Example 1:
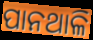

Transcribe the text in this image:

ପାନଥାଳି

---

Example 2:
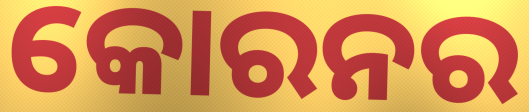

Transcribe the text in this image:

କୋରନର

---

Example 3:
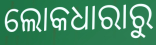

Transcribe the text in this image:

ଲୋକଧାରାରୁ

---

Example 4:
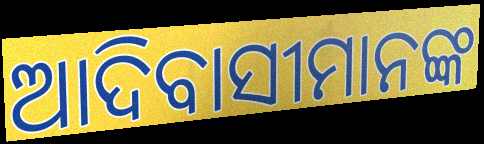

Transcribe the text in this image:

ଆଦିବାସୀମାନଙ୍କ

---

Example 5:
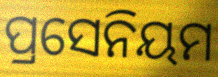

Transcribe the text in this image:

ପ୍ରସେନିୟମ